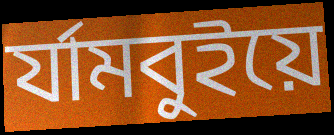
র্যামবুইয়ে